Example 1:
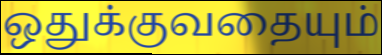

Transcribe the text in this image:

ஒதுக்குவதையும்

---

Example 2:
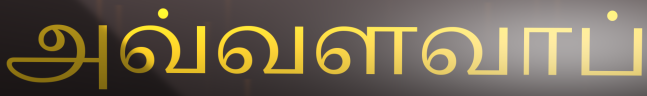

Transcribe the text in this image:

அவ்வளவாப்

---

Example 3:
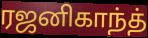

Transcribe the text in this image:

ரஜனிகாந்த்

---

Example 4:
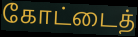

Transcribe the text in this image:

கோட்டைத்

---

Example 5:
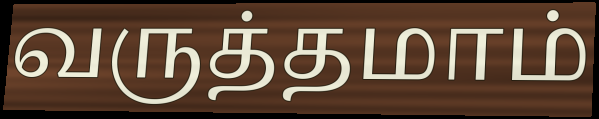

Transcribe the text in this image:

வருத்தமாம்